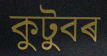
কুটুবৰ